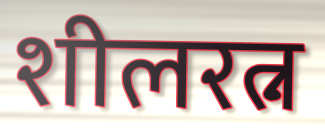
शीलरत्न